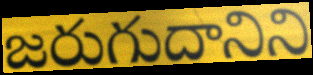
జరుగుదానిని